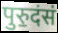
पुरु॒दंसं॑